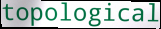
topological